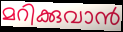
മറിക്കുവാൻ